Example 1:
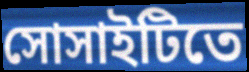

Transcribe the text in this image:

সোসাইটিতে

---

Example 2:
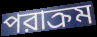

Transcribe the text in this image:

পরাক্রম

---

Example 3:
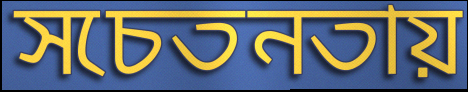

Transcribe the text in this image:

সচেতনতায়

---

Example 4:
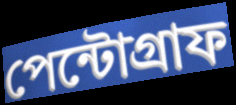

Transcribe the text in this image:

পেন্টোগ্রাফ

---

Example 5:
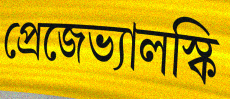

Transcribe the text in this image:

প্রেজেভ্যালস্কি